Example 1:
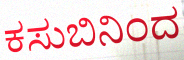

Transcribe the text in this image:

ಕಸುಬಿನಿಂದ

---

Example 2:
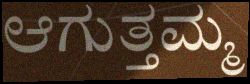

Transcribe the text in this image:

ಆಗುತ್ತಮ್ಮ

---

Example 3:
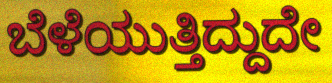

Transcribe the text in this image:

ಬೆಳೆಯುತ್ತಿದ್ದುದೇ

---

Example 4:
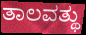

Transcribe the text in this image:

ತಾಲವತ್ಥು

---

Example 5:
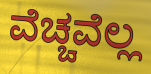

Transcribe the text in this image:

ವೆಚ್ಚವೆಲ್ಲ